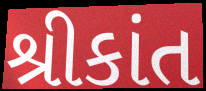
શ્રીકાંત